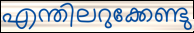
എന്തിലറുക്കേണ്ടു